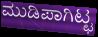
ಮುಡಿಪಾಗಿಟ್ಟ